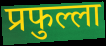
प्रफुल्ला